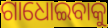
ଗାଧୋଇବାକୁ